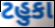
ટહુકા